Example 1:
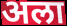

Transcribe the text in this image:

अला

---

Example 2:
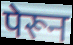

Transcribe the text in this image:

पेरून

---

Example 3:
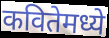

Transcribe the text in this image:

कवितेमध्ये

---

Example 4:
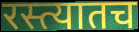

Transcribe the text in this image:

रस्त्यातच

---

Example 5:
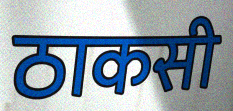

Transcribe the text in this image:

ठाकसी